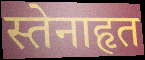
स्तेनाहृत